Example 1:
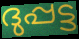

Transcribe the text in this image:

ദുപ്പട്ട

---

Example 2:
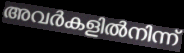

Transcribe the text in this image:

അവർകളിൽനിന്ന്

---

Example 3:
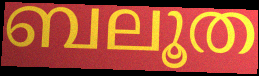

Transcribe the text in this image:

ബലൂത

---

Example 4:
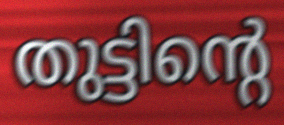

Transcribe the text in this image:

തുട്ടിന്റെ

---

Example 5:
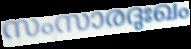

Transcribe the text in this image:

സംസാരദുഃഖം